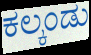
ಕಲ್ಕಂಡು